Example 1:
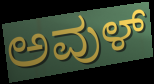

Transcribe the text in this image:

ಅವುಳ್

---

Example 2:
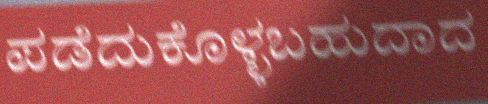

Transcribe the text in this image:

ಪಡೆದುಕೊಳ್ಳಬಹುದಾದ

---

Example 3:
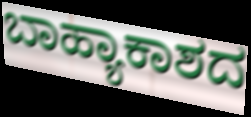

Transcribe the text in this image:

ಬಾಹ್ಯಾಕಾಶದ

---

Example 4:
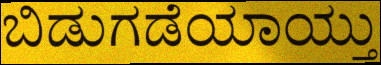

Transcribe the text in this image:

ಬಿಡುಗಡೆಯಾಯ್ತು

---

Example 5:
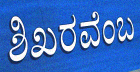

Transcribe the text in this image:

ಶಿಖರವೆಂಬ